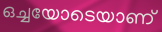
ഒച്ചയോടെയാണ്